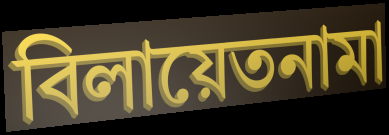
বিলায়েতনামা